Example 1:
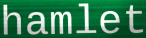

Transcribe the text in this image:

hamlet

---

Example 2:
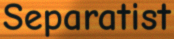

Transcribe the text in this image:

Separatist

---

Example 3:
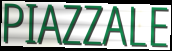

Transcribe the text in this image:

PIAZZALE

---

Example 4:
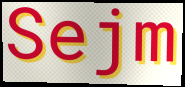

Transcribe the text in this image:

Sejm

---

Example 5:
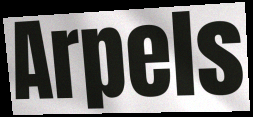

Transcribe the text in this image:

Arpels